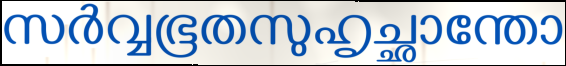
സർവ്വഭൂതസുഹൃച്ഛാന്തോ